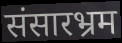
संसारभ्रम